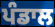
ਪੰਡਾਲ